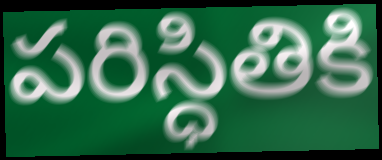
పరిస్ధితికి